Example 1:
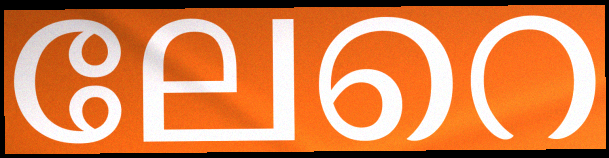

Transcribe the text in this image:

ലേറെ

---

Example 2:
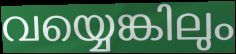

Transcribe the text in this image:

വയ്യെങ്കിലും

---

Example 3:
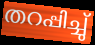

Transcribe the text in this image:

തറപ്പിച്ചു്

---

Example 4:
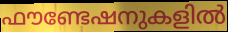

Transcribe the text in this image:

ഫൗണ്ടേഷനുകളിൽ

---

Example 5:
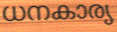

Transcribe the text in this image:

ധനകാര്യ